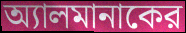
অ্যালমানাকের